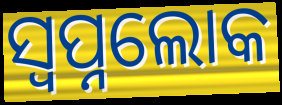
ସ୍ୱପ୍ନଲୋକ